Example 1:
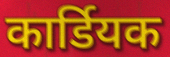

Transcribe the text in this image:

कार्डियक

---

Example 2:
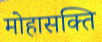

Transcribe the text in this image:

मोहासक्ति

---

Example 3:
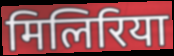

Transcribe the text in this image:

मिलिरिया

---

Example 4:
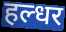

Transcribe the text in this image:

हल्धर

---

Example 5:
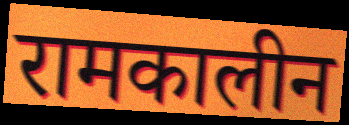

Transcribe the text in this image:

रामकालीन